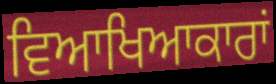
ਵਿਆਖਿਆਕਾਰਾਂ